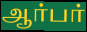
ஆர்பர்